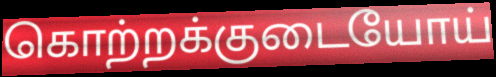
கொற்றக்குடையோய்